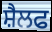
ਸ਼ੈਲਫ